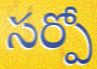
సర్పో